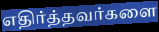
எதிர்த்தவர்களை